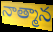
నాత్మాన